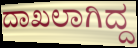
ದಾಖಲಾಗಿದ್ದ